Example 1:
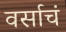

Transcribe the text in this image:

वर्साचं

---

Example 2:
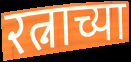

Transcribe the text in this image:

रत्नाच्या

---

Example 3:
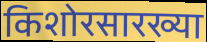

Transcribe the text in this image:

किशोरसारख्या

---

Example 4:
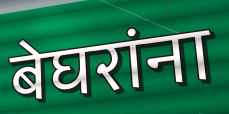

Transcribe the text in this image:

बेघरांना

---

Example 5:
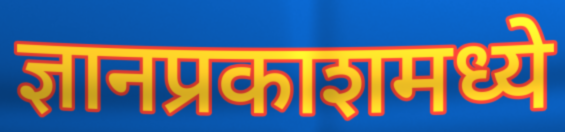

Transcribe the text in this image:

ज्ञानप्रकाशमध्ये